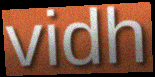
vidh